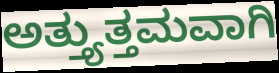
ಅತ್ತ್ಯುತ್ತಮವಾಗಿ